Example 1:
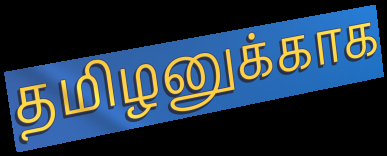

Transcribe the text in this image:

தமிழனுக்காக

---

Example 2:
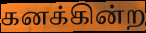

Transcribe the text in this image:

கனக்கின்ற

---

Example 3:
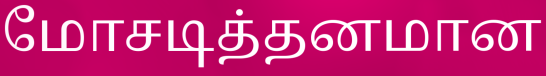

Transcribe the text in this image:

மோசடித்தனமான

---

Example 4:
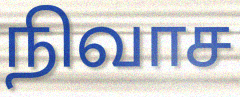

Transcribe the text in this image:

நிவாச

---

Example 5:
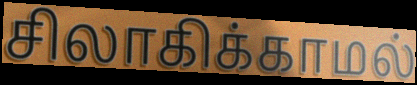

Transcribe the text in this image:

சிலாகிக்காமல்